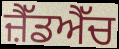
ਜ਼ੈੱਡਐੱਚ